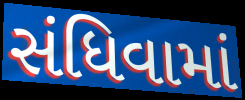
સંધિવામાં